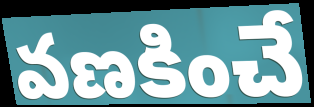
వణకించే